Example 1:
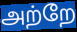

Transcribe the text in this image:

அற்றே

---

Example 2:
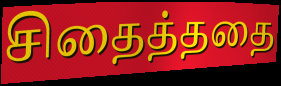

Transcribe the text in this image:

சிதைத்ததை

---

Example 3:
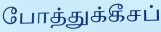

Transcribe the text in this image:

போத்துக்கீசப்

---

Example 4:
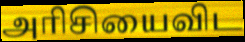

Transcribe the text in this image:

அரிசியைவிட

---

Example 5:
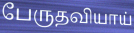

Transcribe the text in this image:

பேருதவியாய்